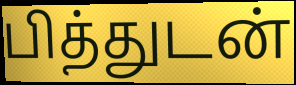
பித்துடன்